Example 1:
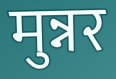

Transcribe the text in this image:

मुन्नर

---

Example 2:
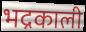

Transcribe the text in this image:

भद्रकाली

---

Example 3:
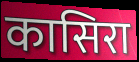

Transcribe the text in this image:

कासिरा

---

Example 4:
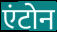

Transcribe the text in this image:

एंटोन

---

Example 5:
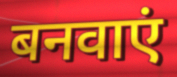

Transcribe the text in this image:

बनवाएं